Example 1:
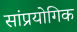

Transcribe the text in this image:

सांप्रयोगिक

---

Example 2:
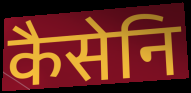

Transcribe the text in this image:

कैसेनि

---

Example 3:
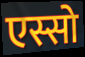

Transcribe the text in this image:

एस्सो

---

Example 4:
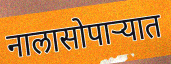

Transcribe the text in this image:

नालासोपाऱ्यात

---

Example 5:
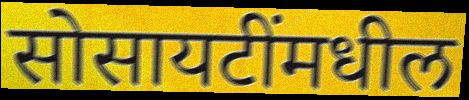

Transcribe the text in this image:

सोसायटींमधील